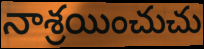
నాశ్రయించుచు